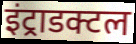
इंट्राडक्टल